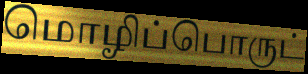
மொழிப்பொருட்